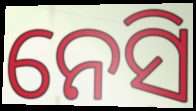
ନେସି